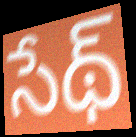
సేథ్